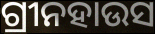
ଗ୍ରୀନହାଉସ